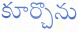
కూర్చొను